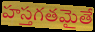
హస్తగతమైతే